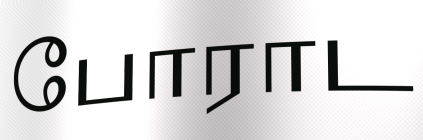
போராட